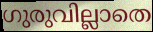
ഗുരുവില്ലാതെ